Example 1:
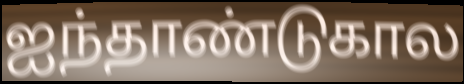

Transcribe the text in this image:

ஐந்தாண்டுகால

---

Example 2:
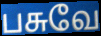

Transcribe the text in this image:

பசுவே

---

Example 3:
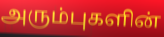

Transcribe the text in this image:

அரும்புகளின்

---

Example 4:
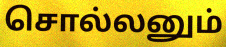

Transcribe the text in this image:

சொல்லனும்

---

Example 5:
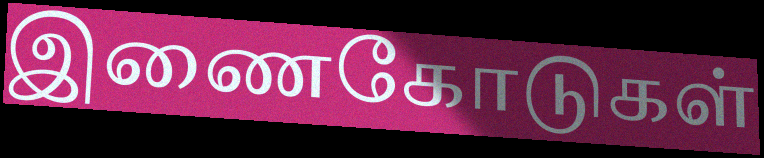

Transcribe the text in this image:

இணைகோடுகள்